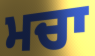
ਮਚਾ